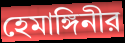
হেমাঙ্গিনীর